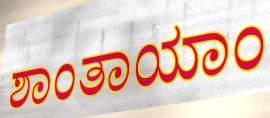
ಶಾಂತಾಯಾಂ